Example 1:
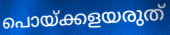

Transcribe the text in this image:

പൊയ്ക്കളയരുത്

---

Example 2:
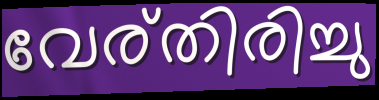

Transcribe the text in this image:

വേര്തിരിച്ചു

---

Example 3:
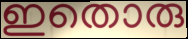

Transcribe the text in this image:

ഇതൊരു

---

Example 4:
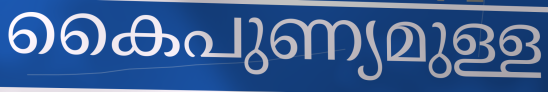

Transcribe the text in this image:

കൈപുണ്യമുള്ള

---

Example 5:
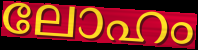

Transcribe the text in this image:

ലോഹം